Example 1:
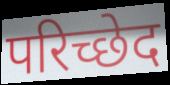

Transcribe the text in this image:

परिच्छेद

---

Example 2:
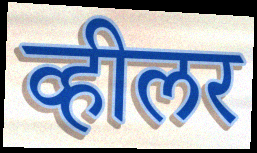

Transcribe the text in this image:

व्हीलर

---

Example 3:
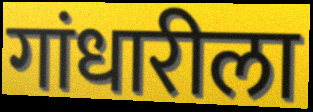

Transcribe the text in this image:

गांधारीला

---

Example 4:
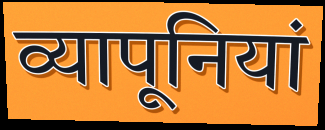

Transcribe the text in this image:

व्यापूनियां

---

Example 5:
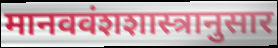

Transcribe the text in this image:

मानववंशशास्त्रानुसार